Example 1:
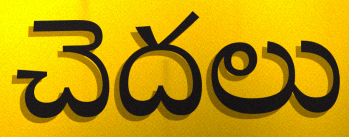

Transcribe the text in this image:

చెదలు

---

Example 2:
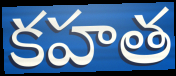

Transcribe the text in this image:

కహత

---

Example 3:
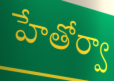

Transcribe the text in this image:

హేతోర్వా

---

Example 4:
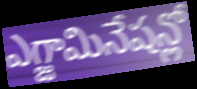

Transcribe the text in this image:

ఎగ్జామినేషన్లో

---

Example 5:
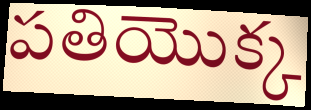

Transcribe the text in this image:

పతియొక్క